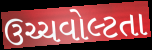
ઉચ્ચવોલ્ટતા